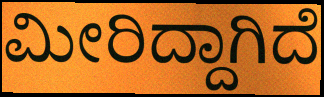
ಮೀರಿದ್ದಾಗಿದೆ